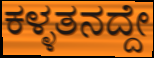
ಕಳ್ಳತನದ್ದೇ